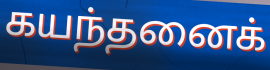
கயந்தனைக்